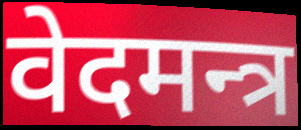
वेदमन्त्र